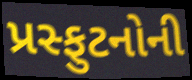
પ્રસ્ફુટનોની